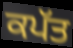
ਕਪੱਤ